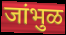
जांभुळ